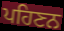
ਪਹਿਣਨ